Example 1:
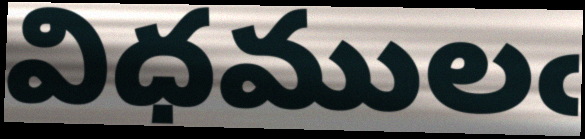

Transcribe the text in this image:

విధములఁ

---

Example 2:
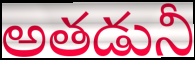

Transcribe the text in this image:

అతడునీ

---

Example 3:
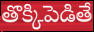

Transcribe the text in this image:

తొక్కిపెడితే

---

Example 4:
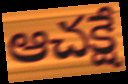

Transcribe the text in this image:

ఆచక్షే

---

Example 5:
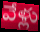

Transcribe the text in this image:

వేళ్లు